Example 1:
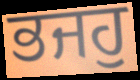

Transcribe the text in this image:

ਭਜਹੁ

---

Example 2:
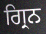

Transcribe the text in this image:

ਗ੍ਰਿਨ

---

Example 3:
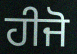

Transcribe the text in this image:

ਹੀਜੋ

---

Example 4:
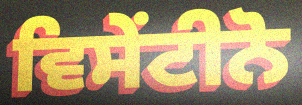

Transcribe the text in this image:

ਵਿਸੇਂਟੀਨੋ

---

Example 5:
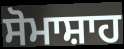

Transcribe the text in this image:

ਸੋਮਾਸ਼ਾਹ